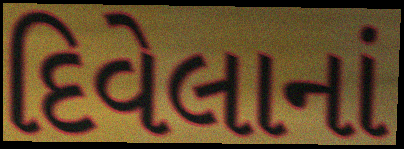
દિવેલાનાં